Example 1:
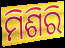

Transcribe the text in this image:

ମିଶିରି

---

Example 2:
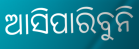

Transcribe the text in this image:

ଆସିପାରିବୁନି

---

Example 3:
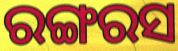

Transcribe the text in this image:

ରଙ୍ଗରସ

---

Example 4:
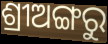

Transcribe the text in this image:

ଶ୍ରୀଅଙ୍ଗରୁ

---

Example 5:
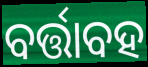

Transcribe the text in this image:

ବର୍ତ୍ତାବହ